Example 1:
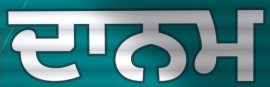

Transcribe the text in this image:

ਦਾਨਮ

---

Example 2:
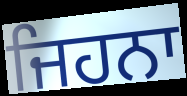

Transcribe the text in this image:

ਜਿਹਨਾ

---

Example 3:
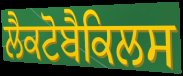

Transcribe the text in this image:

ਲੈਕਟੋਬੈਕਿਲਸ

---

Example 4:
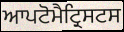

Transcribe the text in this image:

ਆਪਟੋਮੈਟ੍ਰਿਸਟਸ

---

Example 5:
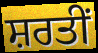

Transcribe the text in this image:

ਸ਼ਰਤੀਂ